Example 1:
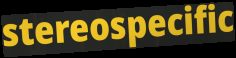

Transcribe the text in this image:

stereospecific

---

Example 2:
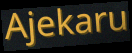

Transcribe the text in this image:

Ajekaru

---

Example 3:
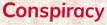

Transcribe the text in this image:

Conspiracy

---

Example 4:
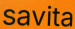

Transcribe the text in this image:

savita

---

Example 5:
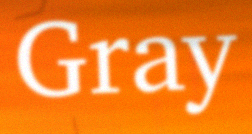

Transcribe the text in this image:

Gray